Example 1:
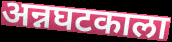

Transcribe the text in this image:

अन्नघटकाला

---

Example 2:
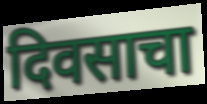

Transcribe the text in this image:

दिवसाचा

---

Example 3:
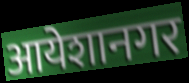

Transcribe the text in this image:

आयेशानगर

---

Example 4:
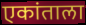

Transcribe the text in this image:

एकांताला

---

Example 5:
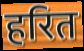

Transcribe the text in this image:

हरित